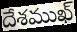
దేశముఖ్